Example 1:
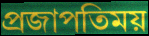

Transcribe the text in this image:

প্রজাপতিময়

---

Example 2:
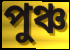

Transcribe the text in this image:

পুঞ্চ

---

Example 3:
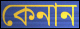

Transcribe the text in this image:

কেনান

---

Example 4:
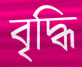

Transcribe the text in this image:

বৃদ্ধি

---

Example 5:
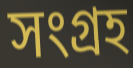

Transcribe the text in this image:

সংগ্রহ